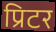
प्रिटर